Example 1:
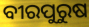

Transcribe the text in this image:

ବୀରପୁରୁଷ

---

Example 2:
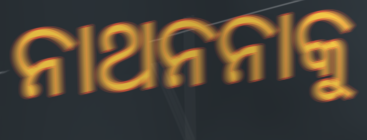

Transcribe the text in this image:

ନାଥନନାକୁ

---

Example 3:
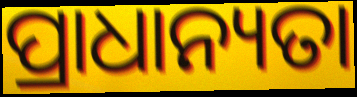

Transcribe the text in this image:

ପ୍ରାଧାନ୍ୟତା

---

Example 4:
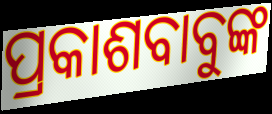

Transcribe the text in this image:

ପ୍ରକାଶବାବୁଙ୍କ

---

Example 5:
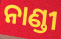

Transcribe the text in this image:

ନାଣ୍ଡୀ